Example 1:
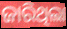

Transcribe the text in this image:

ଜାରିଥିଲା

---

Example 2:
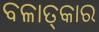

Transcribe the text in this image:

ବଳାତ୍‌କାର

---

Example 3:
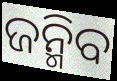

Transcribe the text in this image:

ଜନ୍ମିବ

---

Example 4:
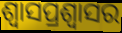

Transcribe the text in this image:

ଶ୍ଵାସପ୍ରଶ୍ଵାସର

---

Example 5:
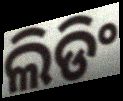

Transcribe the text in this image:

ଲିଡିଂ